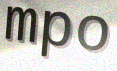
mpo